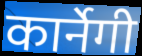
कार्नेगी